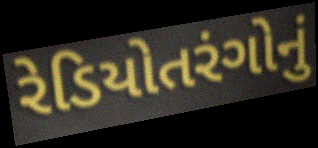
રેડિયોતરંગોનું